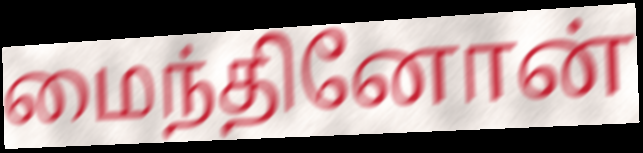
மைந்தினோன்